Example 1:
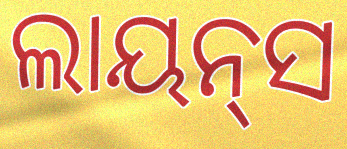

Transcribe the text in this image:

ଲାୟନ୍‌ସ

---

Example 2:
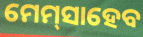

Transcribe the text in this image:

ମେମ୍‌ସାହେବ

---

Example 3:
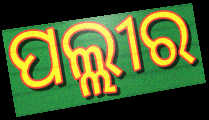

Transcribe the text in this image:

ପଲ୍ଲୀର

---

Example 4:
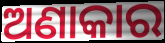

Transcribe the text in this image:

ଅଣାକାର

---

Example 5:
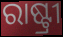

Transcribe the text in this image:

ରାଷ୍ଟ୍ରୀ